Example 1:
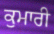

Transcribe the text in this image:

ਕੁਮਾਰੀ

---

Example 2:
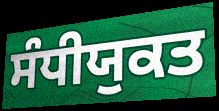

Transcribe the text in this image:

ਸੰਧੀਯੁਕਤ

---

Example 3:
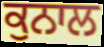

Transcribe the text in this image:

ਕੁਨਾਲ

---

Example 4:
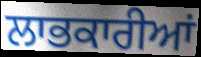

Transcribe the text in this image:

ਲਾਭਕਾਰੀਆਂ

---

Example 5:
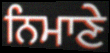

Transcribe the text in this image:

ਨਿਮਾਣੇ